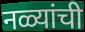
नळ्यांची